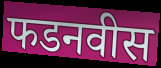
फडनवीस